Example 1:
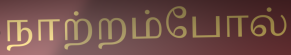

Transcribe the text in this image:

நாற்றம்போல்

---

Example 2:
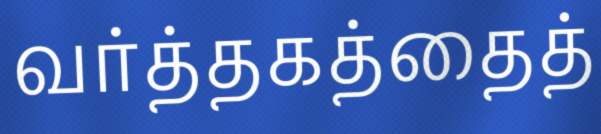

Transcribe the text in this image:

வர்த்தகத்தைத்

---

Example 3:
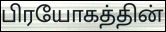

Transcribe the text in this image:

பிரயோகத்தின்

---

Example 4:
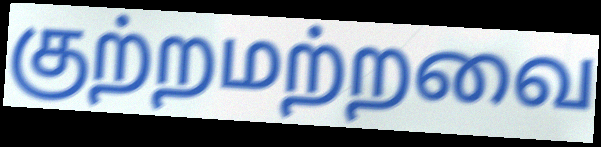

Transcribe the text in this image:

குற்றமற்றவை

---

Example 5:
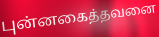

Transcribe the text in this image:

புன்னகைத்தவனை